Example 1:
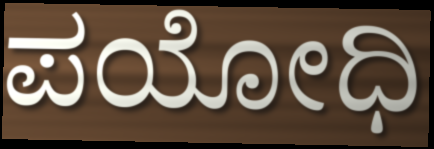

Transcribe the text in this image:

ಪಯೋಧಿ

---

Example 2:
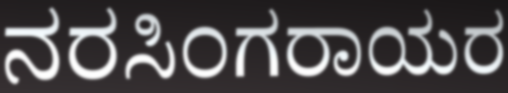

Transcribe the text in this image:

ನರಸಿಂಗರಾಯರ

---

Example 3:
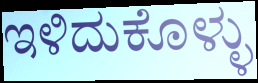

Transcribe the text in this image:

ಇಳಿದುಕೊಳ್ಳು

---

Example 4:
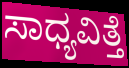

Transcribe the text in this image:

ಸಾಧ್ಯವಿತ್ತೆ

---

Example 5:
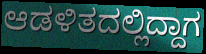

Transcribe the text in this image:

ಆಡಳಿತದಲ್ಲಿದ್ದಾಗ